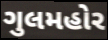
ગુલમહોર